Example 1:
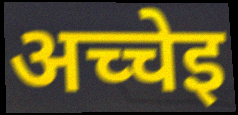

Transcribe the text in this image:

अच्चेइ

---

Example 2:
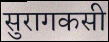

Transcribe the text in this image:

सुरागकसी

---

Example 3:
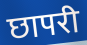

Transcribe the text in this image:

छापरी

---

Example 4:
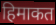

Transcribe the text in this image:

हिमाकत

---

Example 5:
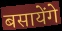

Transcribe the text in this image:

बसायेंगे